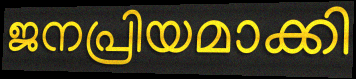
ജനപ്രിയമാക്കി